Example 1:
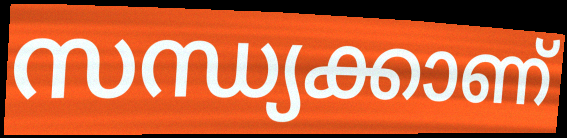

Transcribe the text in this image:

സന്ധ്യക്കാണ്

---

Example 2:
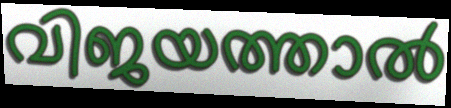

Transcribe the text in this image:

വിജയത്താൽ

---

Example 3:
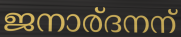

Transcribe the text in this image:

ജനാര്ദനന്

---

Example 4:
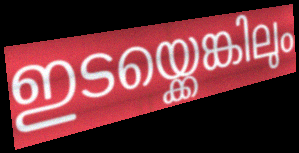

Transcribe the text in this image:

ഇടയ്ക്കെങ്കിലും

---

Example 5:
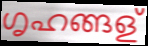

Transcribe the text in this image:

ഗൃഹങ്ങള്